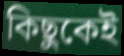
কিছুকেই